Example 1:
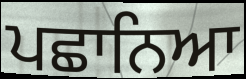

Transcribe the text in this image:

ਪਛਾਨਿਆ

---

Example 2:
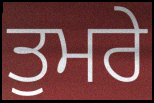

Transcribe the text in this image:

ਤੁਮਰੇ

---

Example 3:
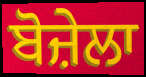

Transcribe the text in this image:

ਬੋਜ਼ੇਲਾ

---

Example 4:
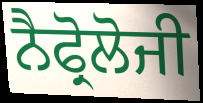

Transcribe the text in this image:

ਨੈਫ੍ਰੋਲੋਜੀ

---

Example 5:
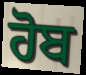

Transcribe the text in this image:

ਹੋਬ